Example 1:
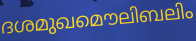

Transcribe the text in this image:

ദശമുഖമൌലിബലിം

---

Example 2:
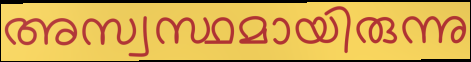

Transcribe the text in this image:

അസ്വസ്ഥമായിരുന്നു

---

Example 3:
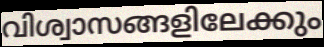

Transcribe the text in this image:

വിശ്വാസങ്ങളിലേക്കും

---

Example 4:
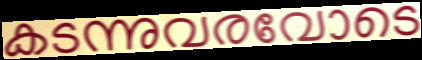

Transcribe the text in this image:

കടന്നുവരവോടെ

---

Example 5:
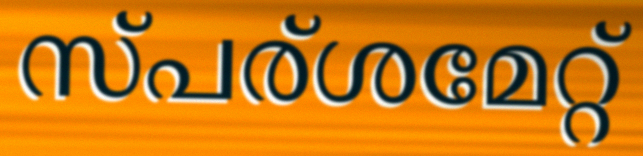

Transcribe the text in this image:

സ്പര്ശമേറ്റ്